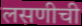
लसणीची